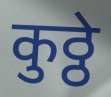
कुठ्ठे